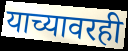
याच्यावरही